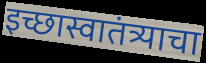
इच्छास्वातंत्र्याचा